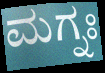
ಮಗ್ನಃ